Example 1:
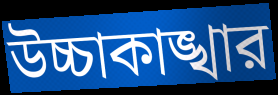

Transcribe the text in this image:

উচ্চাকাঙ্খার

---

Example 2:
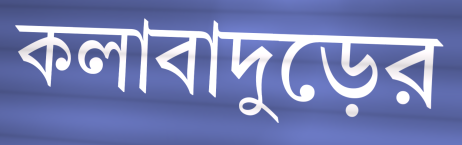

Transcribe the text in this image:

কলাবাদুড়ের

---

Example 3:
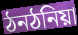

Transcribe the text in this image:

ঠনঠনিয়া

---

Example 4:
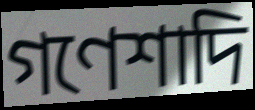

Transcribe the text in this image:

গণেশাদি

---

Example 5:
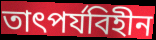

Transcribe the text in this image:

তাৎপর্যবিহীন